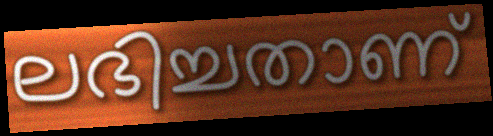
ലഭിച്ചതാണ്